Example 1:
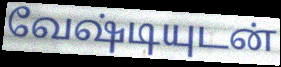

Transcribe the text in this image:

வேஷ்டியுடன்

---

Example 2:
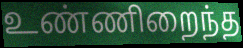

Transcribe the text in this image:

உண்ணிறைந்த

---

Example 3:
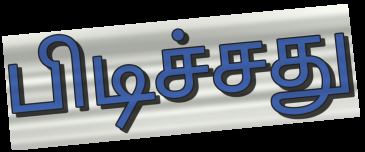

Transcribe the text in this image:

பிடிச்சது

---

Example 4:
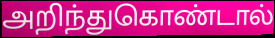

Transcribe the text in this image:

அறிந்துகொண்டால்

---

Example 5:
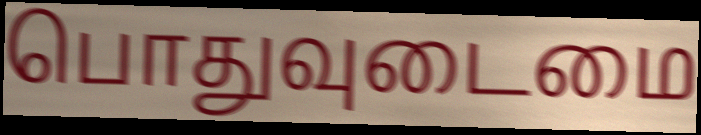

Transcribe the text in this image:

பொதுவுடைமை